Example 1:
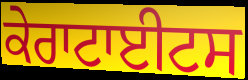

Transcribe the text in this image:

ਕੇਰਾਟਾਈਟਸ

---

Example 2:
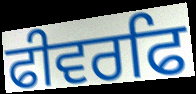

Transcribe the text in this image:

ਫੀਵਰਫਿ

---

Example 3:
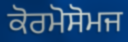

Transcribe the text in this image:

ਕੋਰਮੋਸੋਮਜ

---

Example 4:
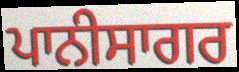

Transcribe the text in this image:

ਪਾਨੀਸਾਗਰ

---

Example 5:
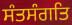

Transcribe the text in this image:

ਸੰਤਸੰਗਤਿ